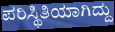
ಪರಿಸ್ಥಿತಿಯಾಗಿದ್ದು